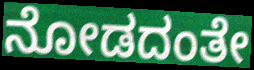
ನೋಡದಂತೇ